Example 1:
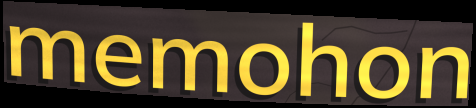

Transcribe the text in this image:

memohon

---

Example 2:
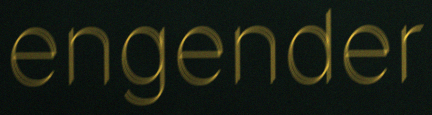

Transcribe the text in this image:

engender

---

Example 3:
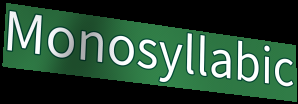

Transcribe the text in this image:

Monosyllabic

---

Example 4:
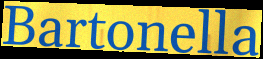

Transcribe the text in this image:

Bartonella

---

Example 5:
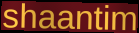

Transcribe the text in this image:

shaantim